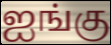
ஐங்கு